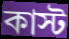
কাস্ট